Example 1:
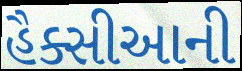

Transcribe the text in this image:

હૈક્સીઆની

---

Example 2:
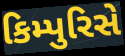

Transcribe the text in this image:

કિમ્પુરિસે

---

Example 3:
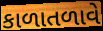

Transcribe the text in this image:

કાળાતળાવે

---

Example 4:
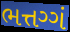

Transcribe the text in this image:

ભત્તગ્ગં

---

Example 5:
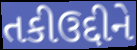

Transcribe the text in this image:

તકીઉદ્દીને